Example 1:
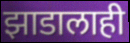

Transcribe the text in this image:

झाडालाही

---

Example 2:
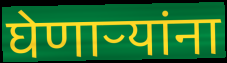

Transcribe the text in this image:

घेणाऱ्यांना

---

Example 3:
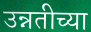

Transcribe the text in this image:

उन्नतीच्या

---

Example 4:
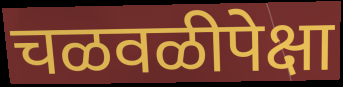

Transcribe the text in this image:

चळवळीपेक्षा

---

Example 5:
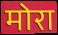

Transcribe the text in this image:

मोरा